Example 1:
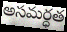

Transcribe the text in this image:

అసమర్ధత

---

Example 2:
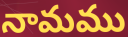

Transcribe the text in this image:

నామము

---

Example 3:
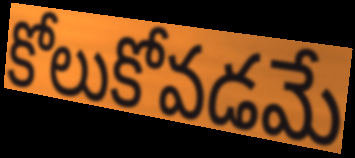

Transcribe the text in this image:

కోలుకోవడమే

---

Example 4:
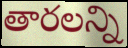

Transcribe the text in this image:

తారలన్ని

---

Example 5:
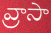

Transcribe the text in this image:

వ్రాసా